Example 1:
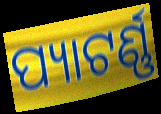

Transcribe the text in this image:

ପ୍ୟାଟର୍ଣ୍ଣ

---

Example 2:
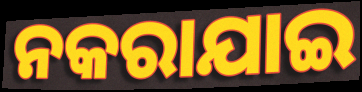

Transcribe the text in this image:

ନକରାଯାଇ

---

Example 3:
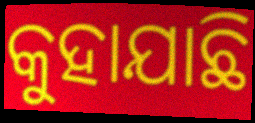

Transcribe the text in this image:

କୁହାଯାଛି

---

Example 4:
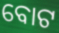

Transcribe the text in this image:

ବୋଟ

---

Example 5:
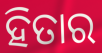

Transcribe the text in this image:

ହିତାର